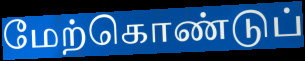
மேற்கொண்டுப்